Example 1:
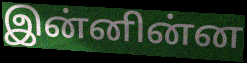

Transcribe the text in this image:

இன்னின்ன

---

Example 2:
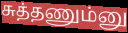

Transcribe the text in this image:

சுத்தணும்னு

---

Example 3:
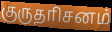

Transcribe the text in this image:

குருதரிசனம்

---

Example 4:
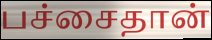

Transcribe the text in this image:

பச்சைதான்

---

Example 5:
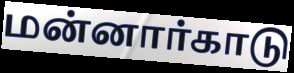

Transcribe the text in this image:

மன்னார்காடு